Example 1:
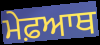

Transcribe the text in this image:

ਮੇਫ਼ਆਥ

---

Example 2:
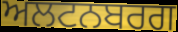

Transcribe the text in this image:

ਅਲਟਨਬਰਗ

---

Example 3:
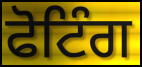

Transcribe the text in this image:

ਫੋਟਿੰਗ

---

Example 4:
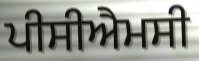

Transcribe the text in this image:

ਪੀਸੀਐਮਸੀ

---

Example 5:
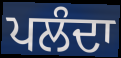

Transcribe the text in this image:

ਪਲੰਦਾ